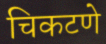
चिकटणे